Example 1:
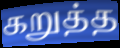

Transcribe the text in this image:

கறுத்த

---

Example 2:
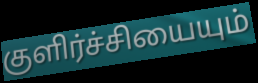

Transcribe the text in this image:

குளிர்ச்சியையும்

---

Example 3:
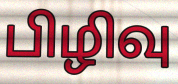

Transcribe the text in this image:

பிழிவு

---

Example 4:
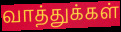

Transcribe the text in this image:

வாத்துக்கள்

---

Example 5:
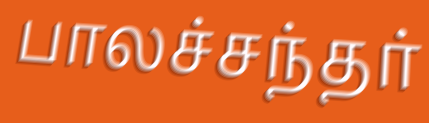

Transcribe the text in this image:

பாலச்சந்தர்